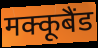
मक्कूबैंड